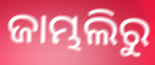
ଜାମ୍ଭଲିରୁ